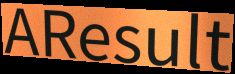
AResult